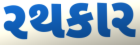
રથકાર